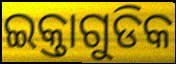
ଇକ୍ତାଗୁଡିକ